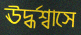
ঊর্দ্ধশ্বাসে